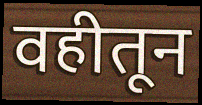
वहीतून